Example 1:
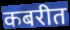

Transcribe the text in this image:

कबरीत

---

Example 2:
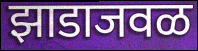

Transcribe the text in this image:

झाडाजवळ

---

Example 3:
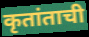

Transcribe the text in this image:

कृतांताची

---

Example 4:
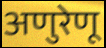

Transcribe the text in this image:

अणुरेणू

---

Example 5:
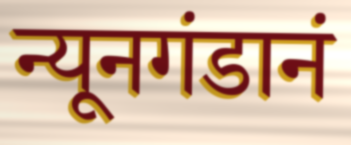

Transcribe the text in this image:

न्यूनगंडानं